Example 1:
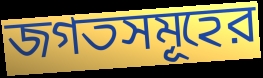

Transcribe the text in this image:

জগতসমূহের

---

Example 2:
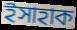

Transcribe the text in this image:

ইসাহাক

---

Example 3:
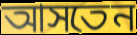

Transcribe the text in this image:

আসতেন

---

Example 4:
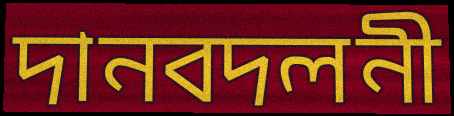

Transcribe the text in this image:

দানবদলনী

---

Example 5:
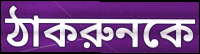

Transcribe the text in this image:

ঠাকরুনকে